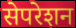
सेपरेशन